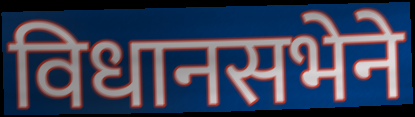
विधानसभेने